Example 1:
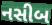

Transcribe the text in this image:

નસીબ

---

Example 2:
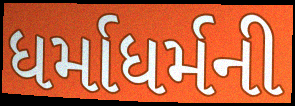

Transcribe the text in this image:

ધર્માધર્મની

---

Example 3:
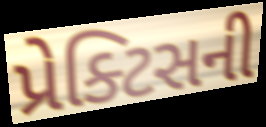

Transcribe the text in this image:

પ્રેક્ટિસની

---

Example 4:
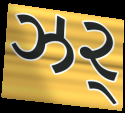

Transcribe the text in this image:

ઝર્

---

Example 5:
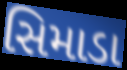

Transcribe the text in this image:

સિમાડા